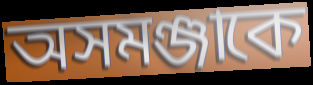
অসমঞ্জাকে